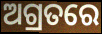
ଅଗ୍ରତରେ